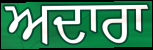
ਅਦਾਰਾ